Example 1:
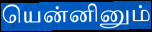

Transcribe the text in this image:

யென்னினும்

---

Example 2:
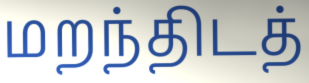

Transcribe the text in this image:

மறந்திடத்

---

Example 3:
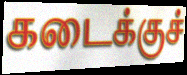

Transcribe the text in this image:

கடைக்குச்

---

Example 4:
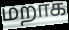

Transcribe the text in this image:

மறாக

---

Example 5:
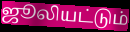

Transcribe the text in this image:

ஜூலியட்டும்